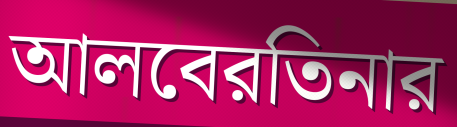
আলবেরতিনার